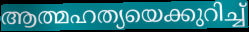
ആത്മഹത്യയെക്കുറിച്ച്